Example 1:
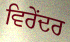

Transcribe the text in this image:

ਵਿਰੇਂਦਰ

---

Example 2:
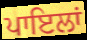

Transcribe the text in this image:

ਪਾਇਲਾਂ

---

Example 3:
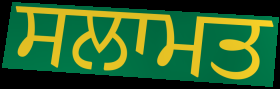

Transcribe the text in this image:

ਸਲਾਮਤ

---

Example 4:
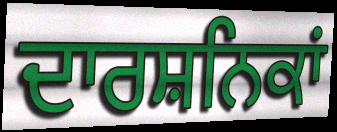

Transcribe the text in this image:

ਦਾਰਸ਼ਨਿਕਾਂ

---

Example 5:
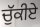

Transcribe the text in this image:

ਚੁੱਕੀਏ